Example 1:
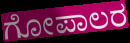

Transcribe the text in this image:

ಗೋಪಾಲರ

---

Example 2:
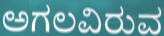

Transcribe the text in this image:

ಅಗಲವಿರುವ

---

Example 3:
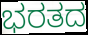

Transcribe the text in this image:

ಭರತದ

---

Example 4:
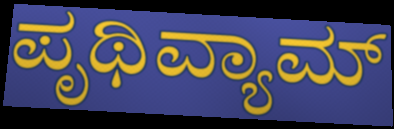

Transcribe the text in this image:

ಪೃಥಿವ್ಯಾಮ್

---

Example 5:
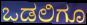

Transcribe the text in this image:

ಒಡಲಿಗೂ